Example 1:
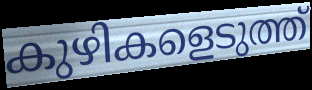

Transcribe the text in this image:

കുഴികളെടുത്ത്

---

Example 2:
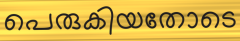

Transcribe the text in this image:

പെരുകിയതോടെ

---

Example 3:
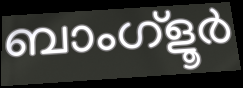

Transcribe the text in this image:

ബാംഗ്ളൂർ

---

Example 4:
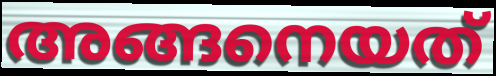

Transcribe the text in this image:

അങ്ങനെയത്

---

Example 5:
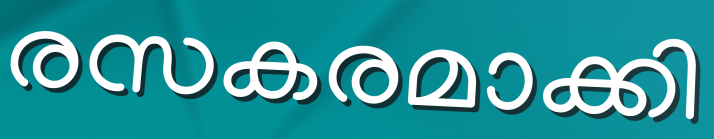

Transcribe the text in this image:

രസകരമാക്കി